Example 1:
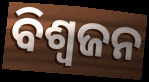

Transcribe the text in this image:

ବିଶ୍ଵଜନ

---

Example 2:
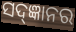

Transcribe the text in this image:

ସଦ୍‌ଜ୍ଞାନର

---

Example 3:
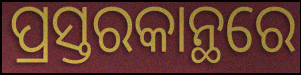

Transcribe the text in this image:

ପ୍ରସ୍ତରକାନ୍ଥରେ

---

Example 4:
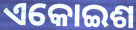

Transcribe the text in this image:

ଏକୋଇଶ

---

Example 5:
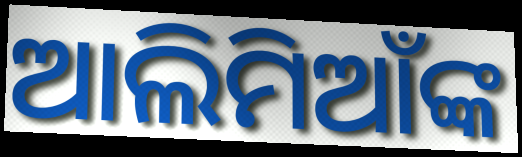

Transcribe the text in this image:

ଆଲିମିଆଁଙ୍କ